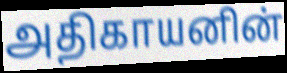
அதிகாயனின்